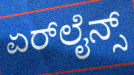
ಏರ್‌ಲೈನ್ಸ್